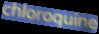
chloroquine